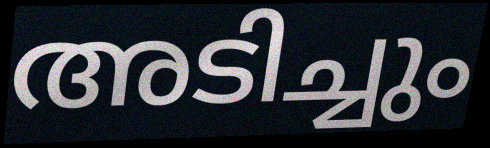
അടിച്ചും